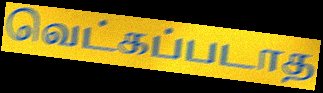
வெட்கப்படாத